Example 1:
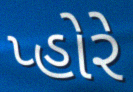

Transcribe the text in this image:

પ્હોરે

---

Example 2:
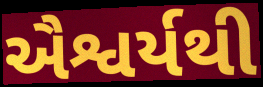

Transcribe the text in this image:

ઐશ્વર્યથી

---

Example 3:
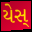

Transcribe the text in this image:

યેસ્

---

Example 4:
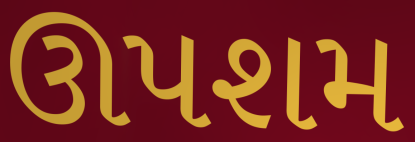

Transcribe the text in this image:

ઊપશમ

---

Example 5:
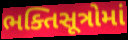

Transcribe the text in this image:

ભક્તિસૂત્રોમાં